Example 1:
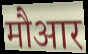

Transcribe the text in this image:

मौआर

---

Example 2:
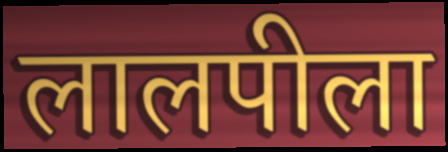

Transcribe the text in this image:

लालपीला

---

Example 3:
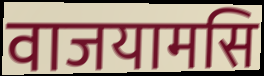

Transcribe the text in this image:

वाजयामसि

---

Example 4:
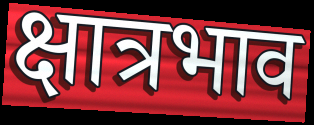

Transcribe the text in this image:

क्षात्रभाव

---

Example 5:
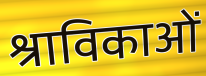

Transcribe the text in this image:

श्राविकाओं